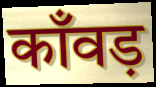
काँवड़